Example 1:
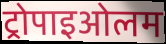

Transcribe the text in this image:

ट्रोपाइओलम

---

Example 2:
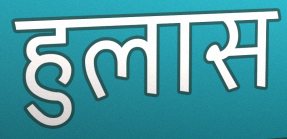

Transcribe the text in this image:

हुलास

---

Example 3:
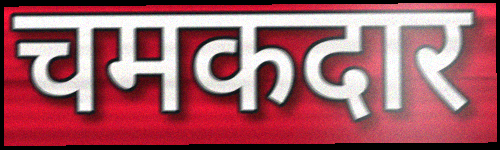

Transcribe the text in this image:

चमकदार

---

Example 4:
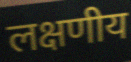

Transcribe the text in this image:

लक्षणीय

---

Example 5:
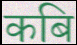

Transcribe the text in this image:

कबि